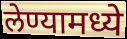
लेण्यामध्ये